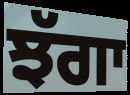
ਝੱਗਾ